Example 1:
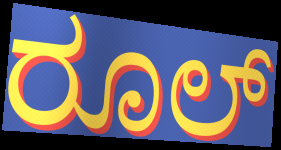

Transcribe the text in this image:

ರೂಲ್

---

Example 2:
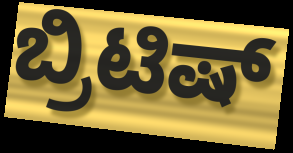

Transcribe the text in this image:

ಬ್ರಿಟಿಷ್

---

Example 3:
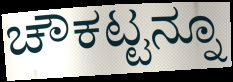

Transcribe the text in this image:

ಚೌಕಟ್ಟನ್ನೂ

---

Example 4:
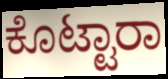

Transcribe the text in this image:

ಕೊಟ್ಟಾರಾ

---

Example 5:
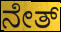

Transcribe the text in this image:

ನೇತ್